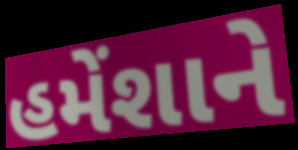
હમેંશાને